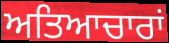
ਅਤਿਆਚਾਰਾਂ